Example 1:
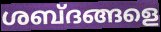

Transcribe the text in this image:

ശബ്ദങ്ങളെ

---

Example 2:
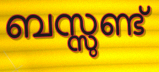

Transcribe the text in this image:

ബസ്സുണ്ട്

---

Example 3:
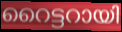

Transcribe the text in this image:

റൈട്ടറായി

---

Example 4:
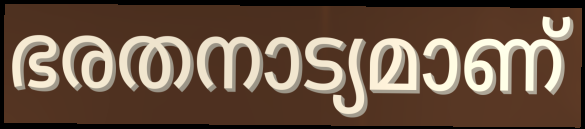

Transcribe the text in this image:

ഭരതനാട്യമാണ്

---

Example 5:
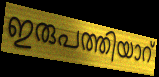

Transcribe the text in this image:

ഇരുപത്തിയാറ്